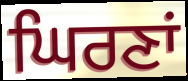
ਘਿਰਣਾਂ